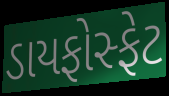
ડાયફોસ્ફેટ